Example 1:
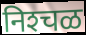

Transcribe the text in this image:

निश्‍चळ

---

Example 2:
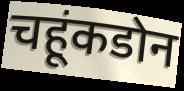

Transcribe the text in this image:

चहूंकडोन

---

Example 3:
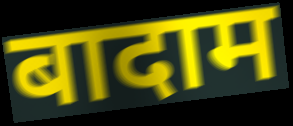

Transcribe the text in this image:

बादाम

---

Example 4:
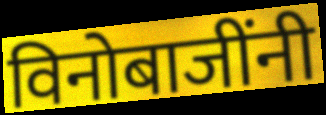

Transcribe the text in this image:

विनोबाजींनी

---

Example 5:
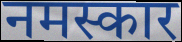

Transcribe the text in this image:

नमस्कार